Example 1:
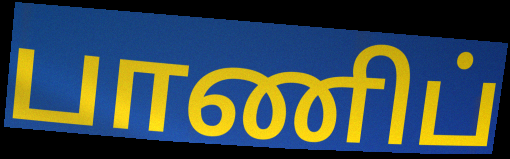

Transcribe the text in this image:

பாணிப்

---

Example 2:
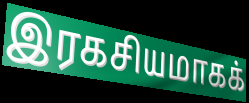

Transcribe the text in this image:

இரகசியமாகக்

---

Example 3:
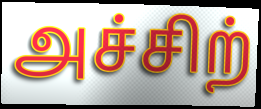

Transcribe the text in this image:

அச்சிற்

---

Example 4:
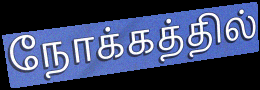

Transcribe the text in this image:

நோக்கத்தில்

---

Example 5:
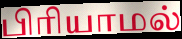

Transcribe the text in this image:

பிரியாமல்